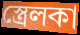
স্ত্রেলকা